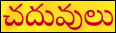
చదువులు